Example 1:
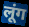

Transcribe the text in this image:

लूंग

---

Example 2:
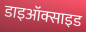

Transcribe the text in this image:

डाइऑक्साइड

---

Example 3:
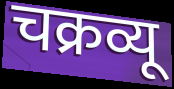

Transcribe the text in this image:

चक्रव्यू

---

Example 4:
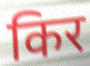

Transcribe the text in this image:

किर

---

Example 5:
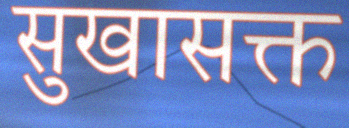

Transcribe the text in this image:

सुखासक्त